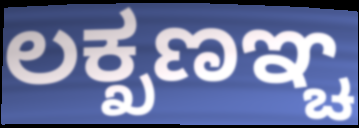
ಲಕ್ಖಣಞ್ಚ